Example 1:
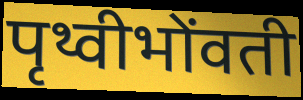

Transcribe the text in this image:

पृथ्वीभोंवती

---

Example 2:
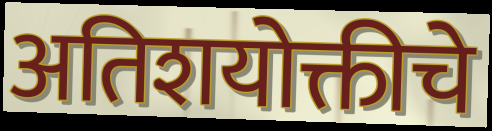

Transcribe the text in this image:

अतिशयोक्तीचे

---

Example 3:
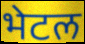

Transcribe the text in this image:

भेटल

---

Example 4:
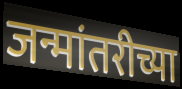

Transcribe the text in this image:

जन्मांतरीच्या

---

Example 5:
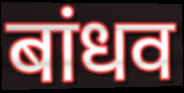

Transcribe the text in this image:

बांधव